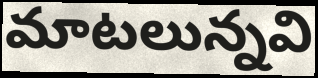
మాటలున్నవి